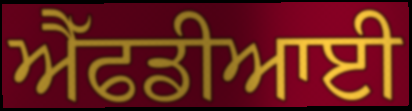
ਐੱਫਡੀਆਈ